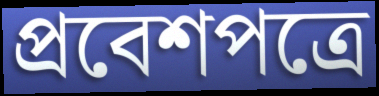
প্রবেশপত্রে